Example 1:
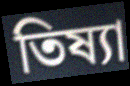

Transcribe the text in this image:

তিষ্যা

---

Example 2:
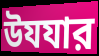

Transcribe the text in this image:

উযযার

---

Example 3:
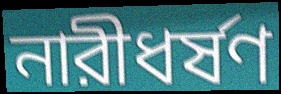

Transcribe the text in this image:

নারীধর্ষণ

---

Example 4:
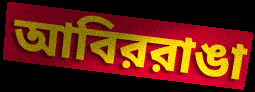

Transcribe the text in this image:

আবিররাঙা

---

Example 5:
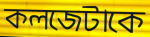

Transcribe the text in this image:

কলজেটাকে